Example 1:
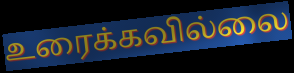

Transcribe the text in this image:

உரைக்கவில்லை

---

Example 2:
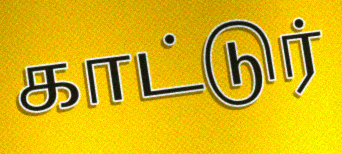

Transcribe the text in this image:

காட்டுர்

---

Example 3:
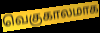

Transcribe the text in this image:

வெகுகாலமாக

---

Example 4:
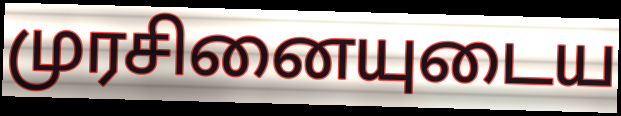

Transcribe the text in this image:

முரசினையுடைய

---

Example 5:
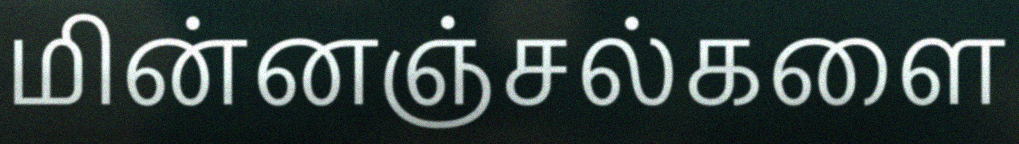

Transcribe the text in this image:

மின்னஞ்சல்களை